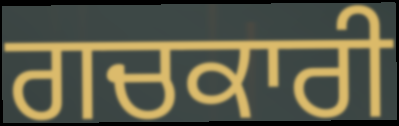
ਗਚਕਾਰੀ